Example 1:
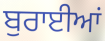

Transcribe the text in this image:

ਬੁਰਾਈਆਂ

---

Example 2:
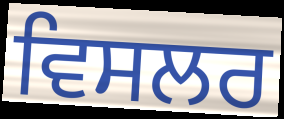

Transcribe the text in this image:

ਵਿਸਲਰ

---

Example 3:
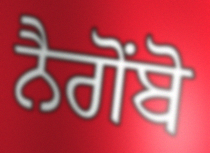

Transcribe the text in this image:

ਨੈਗੋਂਬੋ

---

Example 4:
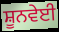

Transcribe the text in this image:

ਸ਼ੂਨਵੇਈ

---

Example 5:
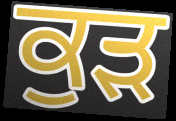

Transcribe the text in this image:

ਕੁੜ